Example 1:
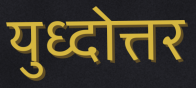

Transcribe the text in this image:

युध्दोत्तर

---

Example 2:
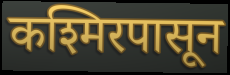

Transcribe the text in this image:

कश्मिरपासून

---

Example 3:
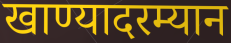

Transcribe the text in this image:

खाण्यादरम्यान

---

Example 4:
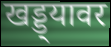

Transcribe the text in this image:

खड्ड्यावर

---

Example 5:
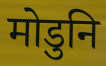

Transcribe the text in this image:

मोडुनि